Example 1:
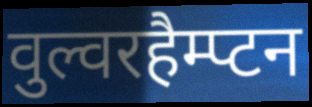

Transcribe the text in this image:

वुल्वरहैम्प्टन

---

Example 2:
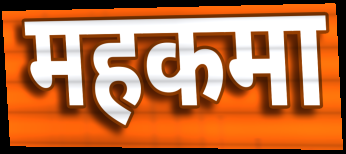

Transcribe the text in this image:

महकमा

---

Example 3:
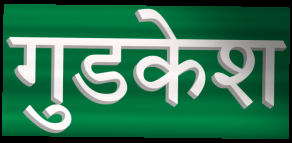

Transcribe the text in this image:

गुडकेश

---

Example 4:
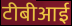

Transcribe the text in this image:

टीबीआई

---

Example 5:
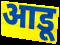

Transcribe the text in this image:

आडू